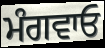
ਮੰਗਵਾਓ